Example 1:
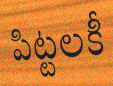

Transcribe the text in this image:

పిట్టలకీ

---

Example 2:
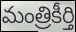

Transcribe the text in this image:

మంత్రికీర్తి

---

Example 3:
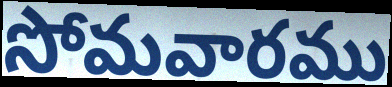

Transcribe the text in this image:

సోమవారము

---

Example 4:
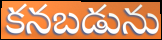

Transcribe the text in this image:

కనబడును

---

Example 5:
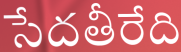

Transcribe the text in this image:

సేదతీరేది